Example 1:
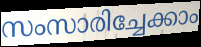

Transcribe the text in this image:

സംസാരിച്ചേക്കാം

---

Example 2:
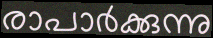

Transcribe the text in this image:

രാപാർക്കുന്നു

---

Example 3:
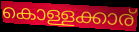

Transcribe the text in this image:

കൊള്ളക്കാര്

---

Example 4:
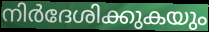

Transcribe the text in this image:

നിർദേശിക്കുകയും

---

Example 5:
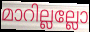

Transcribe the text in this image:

മാറില്ലല്ലോ